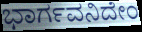
ಭಾರ್ಗವನಿದೇಂ